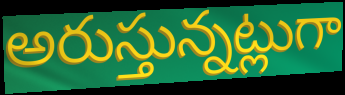
అరుస్తున్నట్లుగా